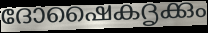
ദോഷൈകദൃക്കും